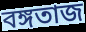
বঙ্গতাজ